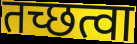
तच्छत्वा